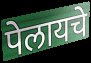
पेलायचे